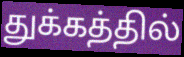
துக்கத்தில்